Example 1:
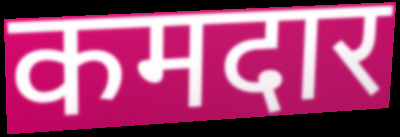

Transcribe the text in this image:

कमदार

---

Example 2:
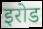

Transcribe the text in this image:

इरोड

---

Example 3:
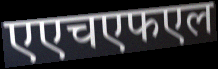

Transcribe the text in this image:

एएचएफएल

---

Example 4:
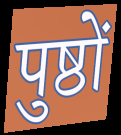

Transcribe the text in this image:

पुष्ठों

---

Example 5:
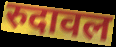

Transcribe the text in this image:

रुदावल